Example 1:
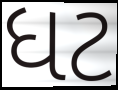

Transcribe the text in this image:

ધટ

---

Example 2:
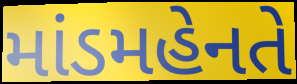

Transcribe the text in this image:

માંડમહેનતે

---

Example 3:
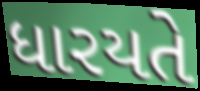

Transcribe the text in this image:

ધારયતે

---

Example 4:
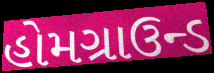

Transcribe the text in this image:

હોમગ્રાઉન્ડ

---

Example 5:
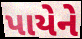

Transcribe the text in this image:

પાયેને